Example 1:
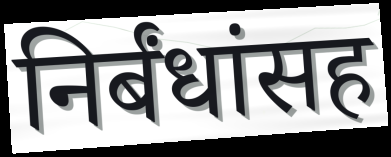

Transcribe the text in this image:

निर्बंधांसह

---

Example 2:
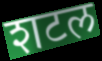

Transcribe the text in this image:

शटल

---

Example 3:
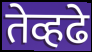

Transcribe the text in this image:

तेव्हढे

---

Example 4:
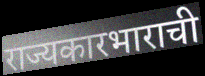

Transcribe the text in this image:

राज्यकारभाराची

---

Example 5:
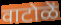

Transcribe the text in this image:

वाटोळें